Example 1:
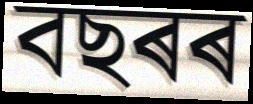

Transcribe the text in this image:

বছৰৰ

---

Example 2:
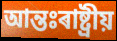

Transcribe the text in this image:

আন্তঃৰাষ্ট্ৰীয়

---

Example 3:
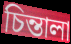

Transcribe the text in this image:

চিন্তালা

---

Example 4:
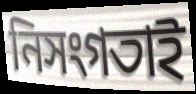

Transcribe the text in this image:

নিসংগতাই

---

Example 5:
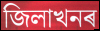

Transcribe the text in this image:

জিলাখনৰ